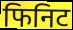
फिनिट